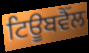
ਟਿਊਬਵੈੱਲ